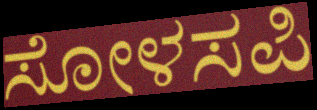
ಸೋಳಸಪಿ